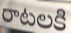
రాటలకి